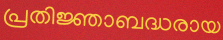
പ്രതിജ്ഞാബദ്ധരായ